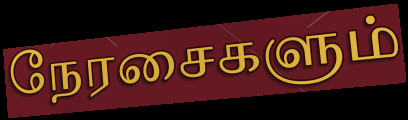
நேரசைகளும்